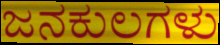
ಜನಕುಲಗಳು